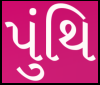
પુંથિ